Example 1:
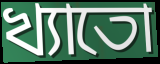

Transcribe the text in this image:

খ্যাতো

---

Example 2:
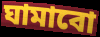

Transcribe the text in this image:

ঘামাবো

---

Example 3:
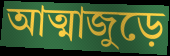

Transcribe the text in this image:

আত্মাজুড়ে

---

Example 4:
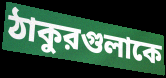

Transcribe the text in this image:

ঠাকুরগুলাকে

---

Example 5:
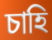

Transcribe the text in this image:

চাহি